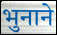
भुनाने